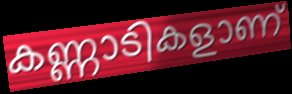
കണ്ണാടികളാണ്